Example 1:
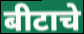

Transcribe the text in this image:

बीटाचे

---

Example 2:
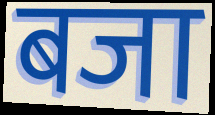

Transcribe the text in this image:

बजा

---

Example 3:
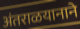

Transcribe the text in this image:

अंतराळयानाने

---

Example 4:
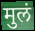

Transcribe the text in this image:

मुलं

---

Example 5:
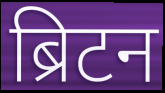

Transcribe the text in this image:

ब्रिटन